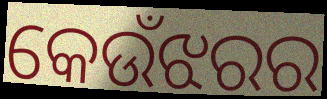
କେଉଁଝରର